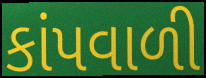
કાંપવાળી